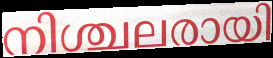
നിശ്ചലരായി